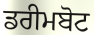
ਡਰੀਮਬੋਟ